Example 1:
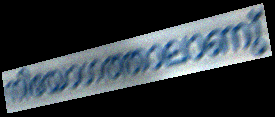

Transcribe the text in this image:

നിയോഗത്താലാണു്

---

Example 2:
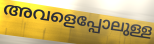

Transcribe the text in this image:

അവളെപ്പോലുള്ള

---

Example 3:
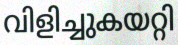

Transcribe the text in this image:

വിളിച്ചുകയറ്റി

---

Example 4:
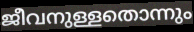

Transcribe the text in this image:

ജീവനുള്ളതൊന്നും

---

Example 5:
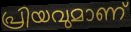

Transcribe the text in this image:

പ്രിയവുമാണ്